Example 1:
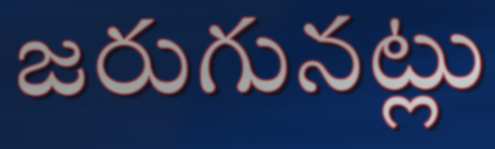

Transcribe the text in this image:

జరుగునట్లు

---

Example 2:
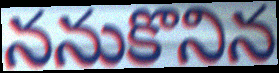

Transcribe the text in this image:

ననుకొనిన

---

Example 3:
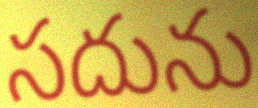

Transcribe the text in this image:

సదును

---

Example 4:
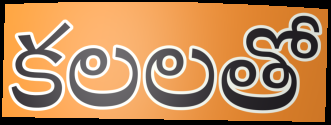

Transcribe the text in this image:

కలలతో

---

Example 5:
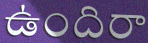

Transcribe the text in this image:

ఉందిరా